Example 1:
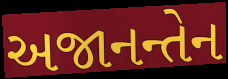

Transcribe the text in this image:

અજાનન્તેન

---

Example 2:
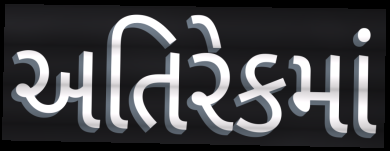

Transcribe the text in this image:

અતિરેકમાં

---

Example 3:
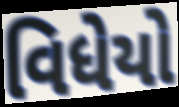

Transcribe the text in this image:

વિધેયો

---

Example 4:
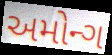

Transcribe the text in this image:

અમોન્ગ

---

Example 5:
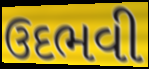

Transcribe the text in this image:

ઉદભવી